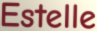
Estelle